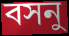
বসনু